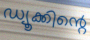
ഡ്യൂക്കിന്റെ